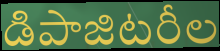
డిపాజిటరీల